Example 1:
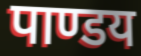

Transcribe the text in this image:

पाण्डय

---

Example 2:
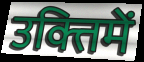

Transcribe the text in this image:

उक्तिमें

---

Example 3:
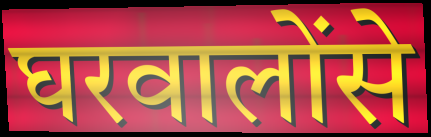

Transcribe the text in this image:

घरवालोंसे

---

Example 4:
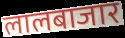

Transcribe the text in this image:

लालबाजार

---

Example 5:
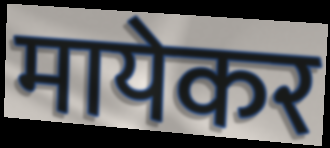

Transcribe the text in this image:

मायेकर